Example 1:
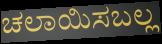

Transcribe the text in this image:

ಚಲಾಯಿಸಬಲ್ಲ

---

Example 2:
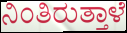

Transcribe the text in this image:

ನಿಂತಿರುತ್ತಾಳೆ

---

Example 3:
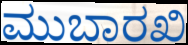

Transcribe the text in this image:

ಮುಬಾರಖಿ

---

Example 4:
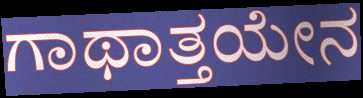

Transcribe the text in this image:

ಗಾಥಾತ್ತಯೇನ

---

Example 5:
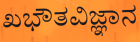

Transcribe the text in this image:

ಖಭೌತವಿಜ್ಞಾನ